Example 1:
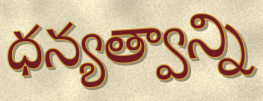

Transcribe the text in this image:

ధన్యత్వాన్ని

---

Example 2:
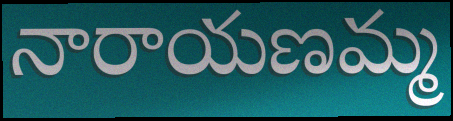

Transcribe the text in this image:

నారాయణమ్మ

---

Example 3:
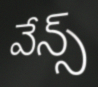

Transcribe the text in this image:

వేన్స్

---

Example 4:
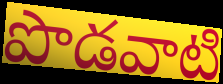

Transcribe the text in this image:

పొడవాటి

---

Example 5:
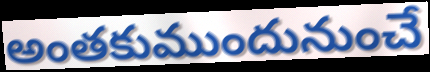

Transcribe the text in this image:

అంతకుముందునుంచే